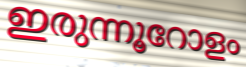
ഇരുന്നൂറോളം